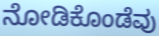
ನೋಡಿಕೊಂಡೆವು